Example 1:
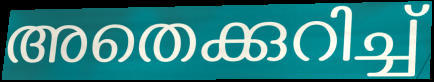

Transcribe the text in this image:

അതെക്കുറിച്ച്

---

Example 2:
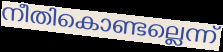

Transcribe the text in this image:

നീതികൊണ്ടല്ലെന്ന്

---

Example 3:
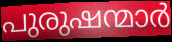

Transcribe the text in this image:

പുരുഷന്മാർ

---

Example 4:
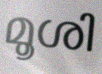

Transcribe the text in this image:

മൂശി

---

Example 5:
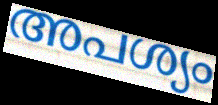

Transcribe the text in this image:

അപശ്യം